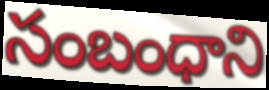
సంబంధాని